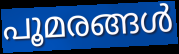
പൂമരങ്ങൾ